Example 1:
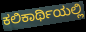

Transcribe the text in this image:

ಕಲಿಕಾರ್ಥಿಯಲ್ಲಿ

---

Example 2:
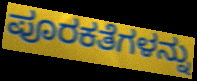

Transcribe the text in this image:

ಪೂರಕತೆಗಳನ್ನು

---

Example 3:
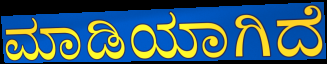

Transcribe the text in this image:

ಮಾಡಿಯಾಗಿದೆ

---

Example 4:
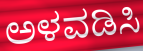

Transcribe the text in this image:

ಅಳವಡಿಸಿ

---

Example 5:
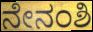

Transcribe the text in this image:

ನೇನಂಶಿ